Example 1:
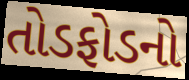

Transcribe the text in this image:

તોડફોડનો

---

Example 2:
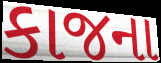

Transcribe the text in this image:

કાજના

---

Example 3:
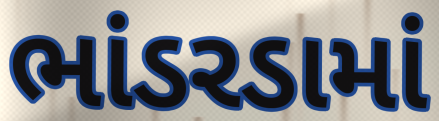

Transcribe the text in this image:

ભાંડરડામાં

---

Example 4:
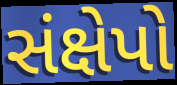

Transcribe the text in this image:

સંક્ષેપો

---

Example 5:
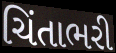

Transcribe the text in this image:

ચિંતાભરી